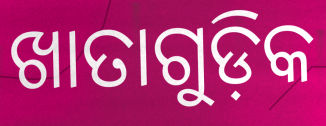
ଖାତାଗୁଡ଼ିକ